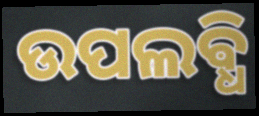
ଉପଲଵ୍ଧି